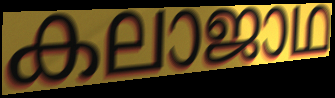
കലാജാഥ